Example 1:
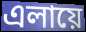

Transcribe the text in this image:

এলায়ে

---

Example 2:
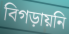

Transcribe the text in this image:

বিগড়ায়নি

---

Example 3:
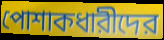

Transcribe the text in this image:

পোশাকধারীদের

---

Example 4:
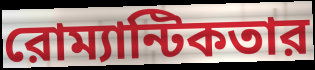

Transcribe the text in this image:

রোম্যান্টিকতার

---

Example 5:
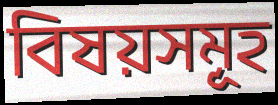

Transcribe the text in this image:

বিষয়সমূহ